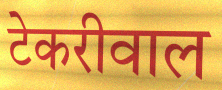
टेकरीवाल